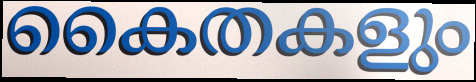
കൈതകളും